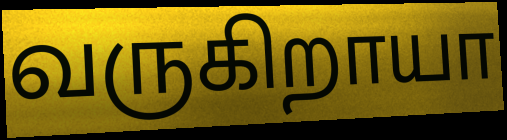
வருகிறாயா